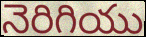
నెరిగియు